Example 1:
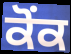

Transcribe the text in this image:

ਕੋਂਕ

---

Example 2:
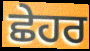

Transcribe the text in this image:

ਛੇਹਰ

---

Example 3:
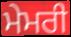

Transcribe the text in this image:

ਮੇਮਰੀ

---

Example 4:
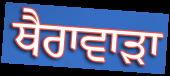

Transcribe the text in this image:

ਥੈਰਾਵਾੜਾ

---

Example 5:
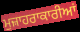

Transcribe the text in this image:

ਮੁਜ਼ਾਹਰਾਕਾਰੀਆਂ